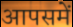
आपसमें